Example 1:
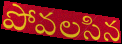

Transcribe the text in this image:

పోవలసిన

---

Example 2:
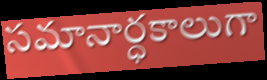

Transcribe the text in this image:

సమానార్ధకాలుగా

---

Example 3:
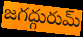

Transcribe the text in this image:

జగద్గురుమ్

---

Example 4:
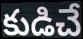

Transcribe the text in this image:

కుడిచే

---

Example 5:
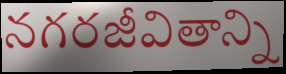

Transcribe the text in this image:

నగరజీవితాన్ని